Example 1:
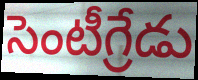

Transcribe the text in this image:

సెంటీగ్రేడు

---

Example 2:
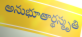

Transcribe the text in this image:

అనుభూతార్థస్మృతి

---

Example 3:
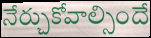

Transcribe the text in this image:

నేర్చుకోవాల్సిందే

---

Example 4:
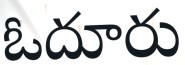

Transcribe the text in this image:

ఓదూరు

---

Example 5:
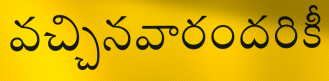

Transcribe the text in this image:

వచ్చినవారందరికీ